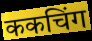
ककचिंग